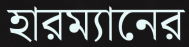
হারম্যানের